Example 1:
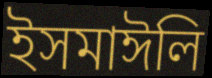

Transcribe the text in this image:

ইসমাঈলি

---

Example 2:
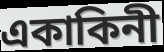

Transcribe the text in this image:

একাকিনী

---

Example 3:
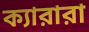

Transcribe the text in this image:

ক্যারারা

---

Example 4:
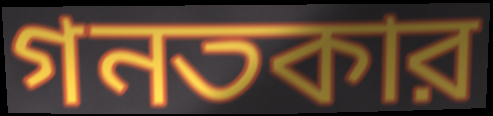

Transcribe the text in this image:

গনতকার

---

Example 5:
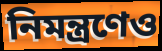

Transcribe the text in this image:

নিমন্ত্রণেও